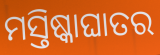
ମସ୍ତିଷ୍କାଘାତର